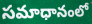
సమాధానంలో